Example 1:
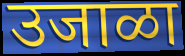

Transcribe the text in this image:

उजाळा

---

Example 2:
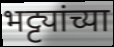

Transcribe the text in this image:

भट्ट्यांच्या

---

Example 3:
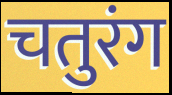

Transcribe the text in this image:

चतुरंग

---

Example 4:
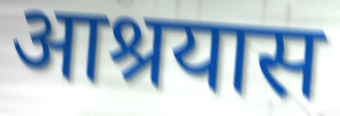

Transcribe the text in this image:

आश्रयास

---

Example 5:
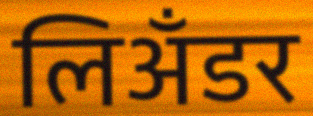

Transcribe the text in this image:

लिअँडर